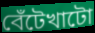
বেঁটেখাটো